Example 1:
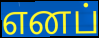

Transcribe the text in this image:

எனப்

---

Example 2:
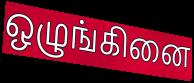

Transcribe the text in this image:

ஒழுங்கினை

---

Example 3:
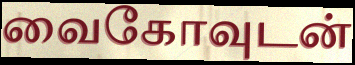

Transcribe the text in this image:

வைகோவுடன்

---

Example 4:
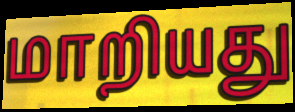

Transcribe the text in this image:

மாறியது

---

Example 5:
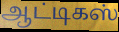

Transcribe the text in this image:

ஆட்டிகஸ்